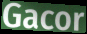
Gacor